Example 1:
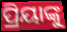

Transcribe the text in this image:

ପ୍ରିୟାଙ୍କୁ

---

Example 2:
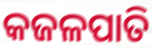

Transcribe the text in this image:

କଜଳପାତି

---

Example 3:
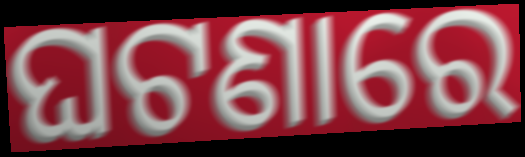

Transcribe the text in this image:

ଘଟଣାରେ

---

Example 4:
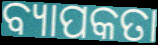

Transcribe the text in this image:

ବ୍ୟାପକତା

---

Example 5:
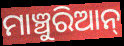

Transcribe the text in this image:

ମାଞ୍ଚୁରିଆନ୍